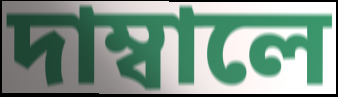
দাম্বালে